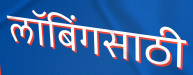
लॉबिंगसाठी